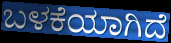
ಬಳಕೆಯಾಗಿದೆ